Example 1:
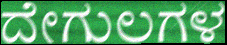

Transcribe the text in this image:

ದೇಗುಲಗಳ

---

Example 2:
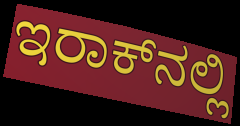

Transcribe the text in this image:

ಇರಾಕ್‍ನಲ್ಲಿ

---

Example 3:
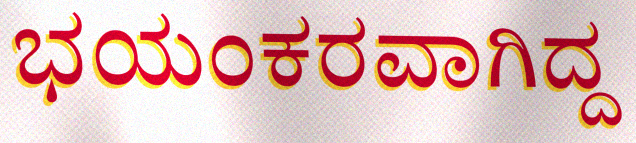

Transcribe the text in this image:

ಭಯಂಕರವಾಗಿದ್ದ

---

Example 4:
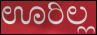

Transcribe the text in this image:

ಊರಿಲ್ಲ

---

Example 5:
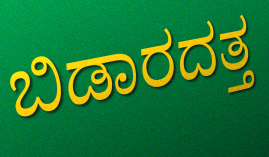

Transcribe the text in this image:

ಬಿಡಾರದತ್ತ